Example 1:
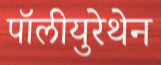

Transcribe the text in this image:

पॉलीयुरेथेन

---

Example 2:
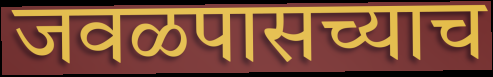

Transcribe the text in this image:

जवळपासच्याच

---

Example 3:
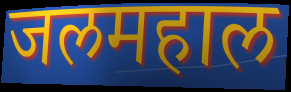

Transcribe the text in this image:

जलमहाल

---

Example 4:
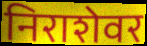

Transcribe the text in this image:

निराशेवर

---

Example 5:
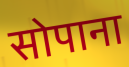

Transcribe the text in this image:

सोपाना